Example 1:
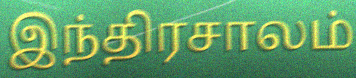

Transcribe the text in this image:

இந்திரசாலம்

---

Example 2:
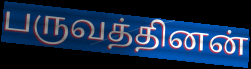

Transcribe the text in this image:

பருவத்தினன்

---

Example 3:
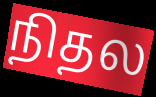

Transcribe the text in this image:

நிதல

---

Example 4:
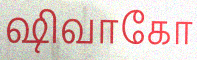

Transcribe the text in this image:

ஷிவாகோ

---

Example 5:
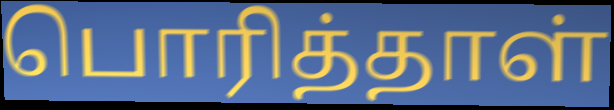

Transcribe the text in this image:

பொரித்தாள்